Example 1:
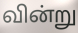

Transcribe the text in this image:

வின்று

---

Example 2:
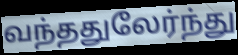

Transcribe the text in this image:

வந்ததுலேர்ந்து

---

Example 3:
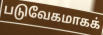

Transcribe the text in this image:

படுவேகமாகக்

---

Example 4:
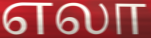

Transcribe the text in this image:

எலா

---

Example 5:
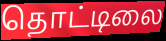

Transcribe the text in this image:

தொட்டிலை